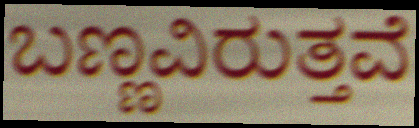
ಬಣ್ಣವಿರುತ್ತವೆ